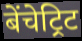
बेंचेट्रिट